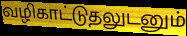
வழிகாட்டுதலுடனும்